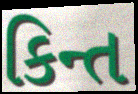
કિન્ત